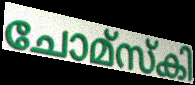
ചോമ്സ്കി